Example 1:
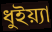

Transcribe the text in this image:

ধুইয়্যা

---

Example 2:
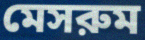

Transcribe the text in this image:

মেসরুম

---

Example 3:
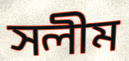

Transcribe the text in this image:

সলীম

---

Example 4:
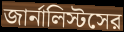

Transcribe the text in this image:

জার্নালিস্টসের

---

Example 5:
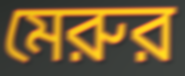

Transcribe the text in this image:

মেরুর